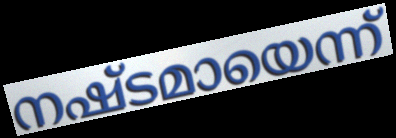
നഷ്ടമായെന്ന്